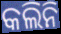
କଲିନି